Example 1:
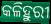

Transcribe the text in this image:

କଳିହୁରୀ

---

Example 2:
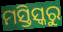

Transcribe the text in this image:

ମସ୍ତିସ୍କରୁ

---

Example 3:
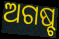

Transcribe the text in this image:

ଅଗଷ୍ଚ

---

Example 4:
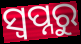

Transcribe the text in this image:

ସ୍ୱପ୍ନରୁ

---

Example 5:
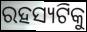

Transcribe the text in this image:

ରହସ୍ୟଟିକୁ